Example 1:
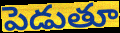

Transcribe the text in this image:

పెడుతూ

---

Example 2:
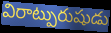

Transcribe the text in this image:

విరాట్పురుషుడు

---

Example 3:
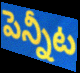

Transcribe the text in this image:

పెన్నీట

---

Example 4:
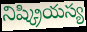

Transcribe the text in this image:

నిష్క్రియస్య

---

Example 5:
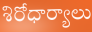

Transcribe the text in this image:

శిరోధార్యాలు